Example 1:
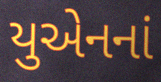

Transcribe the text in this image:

યુએનનાં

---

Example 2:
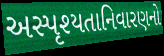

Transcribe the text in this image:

અસ્પૃશ્યતાનિવારણનો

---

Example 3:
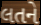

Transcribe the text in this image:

લતને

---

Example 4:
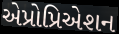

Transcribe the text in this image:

એપ્રોપ્રિએશન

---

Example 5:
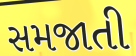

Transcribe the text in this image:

સમજાતી